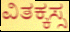
ವಿತಕ್ಕಸ್ಸ